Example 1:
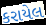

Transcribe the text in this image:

કરાયેલ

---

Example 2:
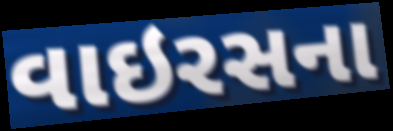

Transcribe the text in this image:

વાઇરસના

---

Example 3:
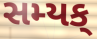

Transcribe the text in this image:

સમ્યક્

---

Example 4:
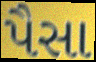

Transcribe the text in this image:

પૈસા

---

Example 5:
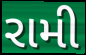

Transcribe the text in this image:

રામી